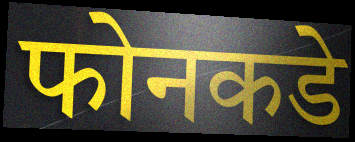
फोनकडे